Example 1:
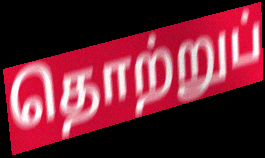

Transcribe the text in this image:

தொற்றுப்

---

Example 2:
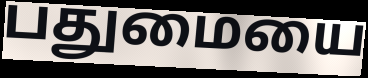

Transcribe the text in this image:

பதுமையை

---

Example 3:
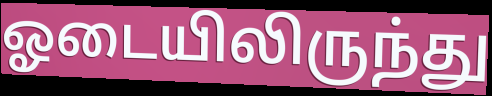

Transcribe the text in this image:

ஓடையிலிருந்து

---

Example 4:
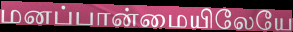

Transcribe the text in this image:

மனப்பான்மையிலேயே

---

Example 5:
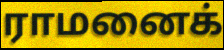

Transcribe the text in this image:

ராமனைக்